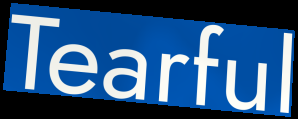
Tearful